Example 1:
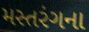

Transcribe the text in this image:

મસ્તરંગના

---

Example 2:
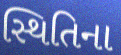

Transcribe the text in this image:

સ્થિતિના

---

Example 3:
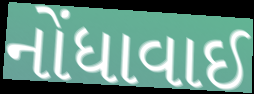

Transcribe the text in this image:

નોંધાવાઈ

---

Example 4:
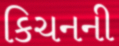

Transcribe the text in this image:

કિચનની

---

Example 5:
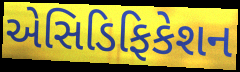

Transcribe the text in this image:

એસિડિફિકેશન